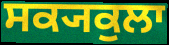
ਸਕ੍ਯਕੁਲਾ